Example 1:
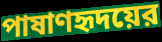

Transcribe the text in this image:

পাষাণহৃদয়ের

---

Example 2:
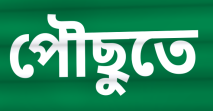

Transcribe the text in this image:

পৌছুতে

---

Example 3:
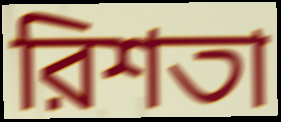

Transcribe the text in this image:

রিশতা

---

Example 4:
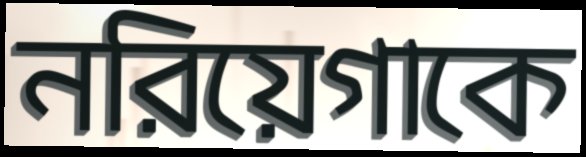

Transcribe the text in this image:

নরিয়েগাকে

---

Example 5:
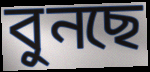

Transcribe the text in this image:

বুনছে